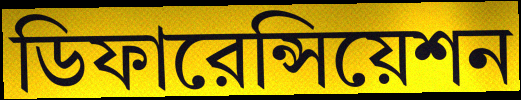
ডিফারেন্সিয়েশন